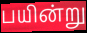
பயின்று